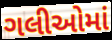
ગલીઓમાં